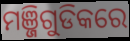
ମଞ୍ଜିଗୁଡିକରେ